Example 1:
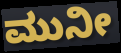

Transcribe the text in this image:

ಮುನೀ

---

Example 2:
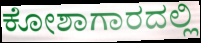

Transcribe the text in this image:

ಕೋಶಾಗಾರದಲ್ಲಿ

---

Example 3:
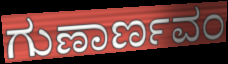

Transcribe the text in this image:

ಗುಣಾರ್ಣವಂ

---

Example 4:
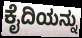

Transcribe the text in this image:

ಕೈದಿಯನ್ನು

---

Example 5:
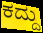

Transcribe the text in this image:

ಕದ್ದು